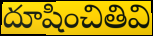
దూషించితివి